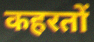
कहरतों